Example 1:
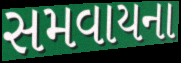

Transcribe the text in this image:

સમવાયના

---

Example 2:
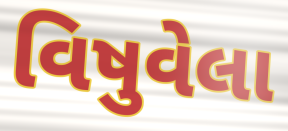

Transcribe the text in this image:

વિષુવેલા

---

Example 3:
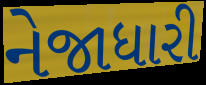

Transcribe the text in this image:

નેજાધારી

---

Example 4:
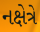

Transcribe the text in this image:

નક્ષેત્રે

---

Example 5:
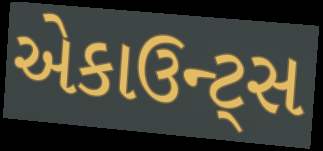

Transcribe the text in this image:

એકાઉન્ટ્સ